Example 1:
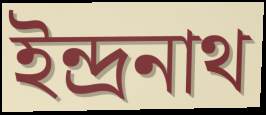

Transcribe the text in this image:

ইন্দ্ৰনাথ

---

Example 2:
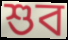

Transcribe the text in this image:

শুব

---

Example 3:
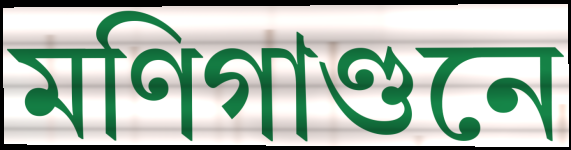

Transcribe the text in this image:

মণিগাণ্ডনে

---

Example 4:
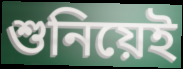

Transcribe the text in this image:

শুনিয়েই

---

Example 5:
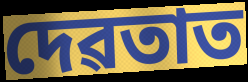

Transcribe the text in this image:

দেৱতাত